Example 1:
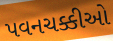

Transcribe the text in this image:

પવનચક્કીઓ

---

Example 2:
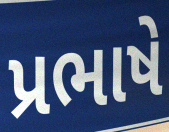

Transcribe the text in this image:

પ્રભાષે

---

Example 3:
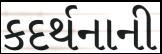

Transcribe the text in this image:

કદર્થનાની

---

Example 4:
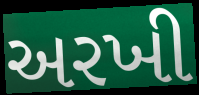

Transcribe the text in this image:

અરખી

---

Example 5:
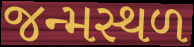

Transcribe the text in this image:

જન્મસ્થળ